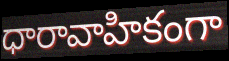
ధారావాహికంగా